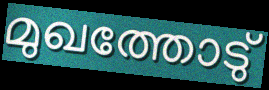
മുഖത്തോടു്